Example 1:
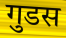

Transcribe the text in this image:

गुडस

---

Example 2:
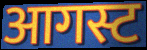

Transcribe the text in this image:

आगस्ट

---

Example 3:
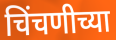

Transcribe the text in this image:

चिंचणीच्या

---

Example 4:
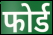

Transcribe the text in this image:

फोर्ड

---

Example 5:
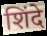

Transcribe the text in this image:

शिंदे